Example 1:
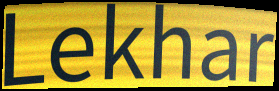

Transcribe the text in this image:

Lekhar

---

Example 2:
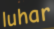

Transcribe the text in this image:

luhar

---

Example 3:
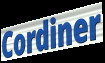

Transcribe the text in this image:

Cordiner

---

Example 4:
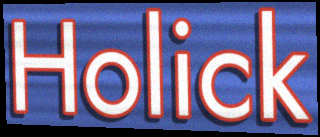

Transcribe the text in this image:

Holick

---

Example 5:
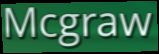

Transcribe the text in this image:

Mcgraw